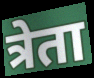
त्रेता